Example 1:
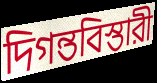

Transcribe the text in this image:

দিগন্তবিস্তারী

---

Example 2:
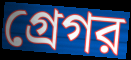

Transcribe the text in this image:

গ্রেগর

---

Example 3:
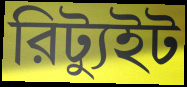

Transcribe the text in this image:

রিট্যুইট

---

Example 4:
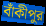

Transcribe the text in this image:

বাঁকীপুর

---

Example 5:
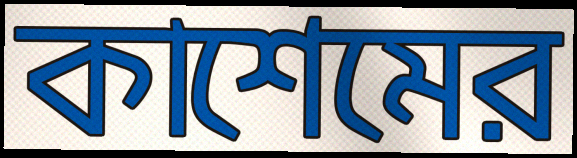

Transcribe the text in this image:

কাশেমের